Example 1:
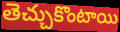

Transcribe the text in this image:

తెచ్చుకొంటాయి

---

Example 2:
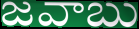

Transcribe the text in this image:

జవాబు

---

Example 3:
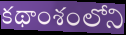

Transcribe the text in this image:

కథాంశంలోని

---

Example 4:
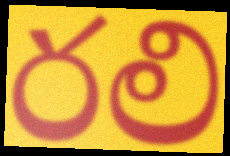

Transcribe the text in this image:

రలి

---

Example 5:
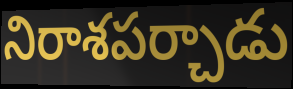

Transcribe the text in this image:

నిరాశపర్చాడు